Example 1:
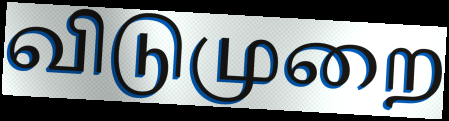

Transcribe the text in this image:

விடுமுறை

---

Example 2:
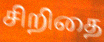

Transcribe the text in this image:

சிறிதை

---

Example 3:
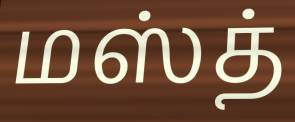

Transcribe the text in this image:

மஸ்த்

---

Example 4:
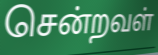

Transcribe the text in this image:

சென்றவள்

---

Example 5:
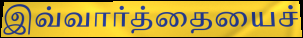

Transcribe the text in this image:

இவ்வார்த்தையைச்